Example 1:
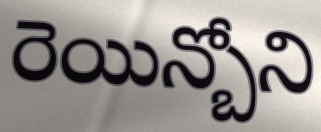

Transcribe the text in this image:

రెయిన్బోని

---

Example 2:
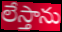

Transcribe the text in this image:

లేస్తాను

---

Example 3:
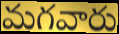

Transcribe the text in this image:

మగవారు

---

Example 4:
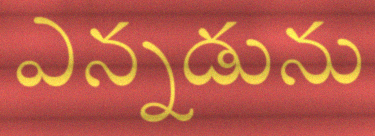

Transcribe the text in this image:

ఎన్నడును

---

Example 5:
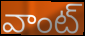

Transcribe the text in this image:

వాంట్